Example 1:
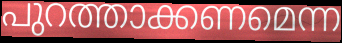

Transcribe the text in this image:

പുറത്താക്കണമെന്ന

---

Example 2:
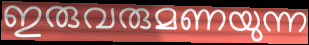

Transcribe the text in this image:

ഇരുവരുമണയുന്ന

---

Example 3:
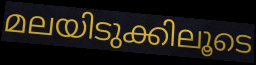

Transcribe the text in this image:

മലയിടുക്കിലൂടെ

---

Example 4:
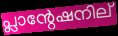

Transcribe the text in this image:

പ്ലാന്റേഷനില്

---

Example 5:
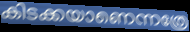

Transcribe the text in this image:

കിടക്കയാണെന്നത്രേ